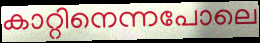
കാറ്റിനെന്നപോലെ